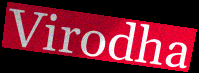
Virodha